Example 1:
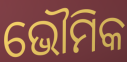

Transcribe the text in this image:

ଭୌମିକ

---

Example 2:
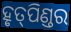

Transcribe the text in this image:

ହୃତ୍‌ପିଣ୍ଡର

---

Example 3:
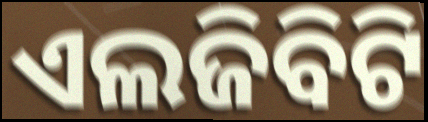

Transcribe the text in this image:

ଏଲଜିବିଟି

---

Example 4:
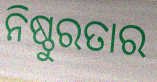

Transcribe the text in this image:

ନିଷ୍ଠୁରତାର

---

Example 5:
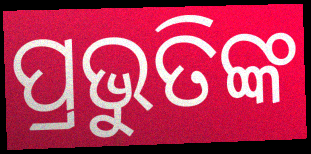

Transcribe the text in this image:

ପ୍ରଭୁତିଙ୍କ